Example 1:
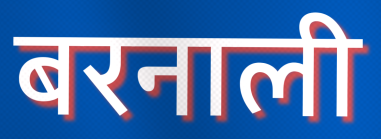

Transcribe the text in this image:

बरनाली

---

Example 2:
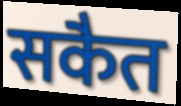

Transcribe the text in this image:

सकैत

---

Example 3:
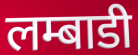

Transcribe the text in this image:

लम्बाडी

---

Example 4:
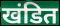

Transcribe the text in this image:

खंडित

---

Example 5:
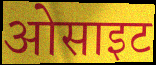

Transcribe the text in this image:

ओसाइट